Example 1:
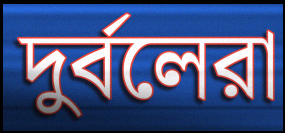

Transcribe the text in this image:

দুর্বলেরা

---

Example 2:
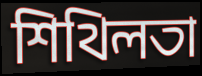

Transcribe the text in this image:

শিথিলতা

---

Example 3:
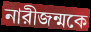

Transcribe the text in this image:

নারীজন্মকে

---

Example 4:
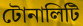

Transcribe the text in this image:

টোনালিটি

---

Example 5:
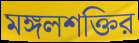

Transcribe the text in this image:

মঙ্গলশক্তির